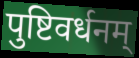
पुष्टिवर्धनम्